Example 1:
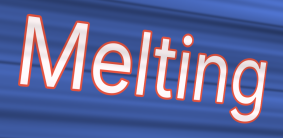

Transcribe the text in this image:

Melting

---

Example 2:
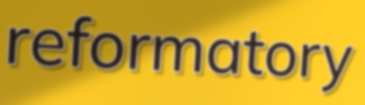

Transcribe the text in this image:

reformatory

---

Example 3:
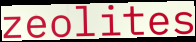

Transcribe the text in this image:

zeolites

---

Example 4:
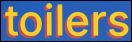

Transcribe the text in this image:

toilers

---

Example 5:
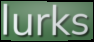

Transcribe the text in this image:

lurks